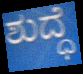
ಶುದ್ಧೆ